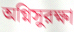
অগ্নিসুরক্ষা